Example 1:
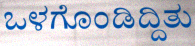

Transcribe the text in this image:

ಒಳಗೊಂಡಿದ್ದಿತು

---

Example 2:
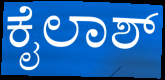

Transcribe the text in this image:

ಕೈಲಾಶ್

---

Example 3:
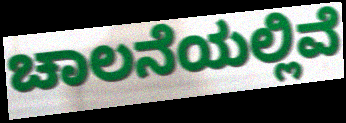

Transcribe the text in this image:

ಚಾಲನೆಯಲ್ಲಿವೆ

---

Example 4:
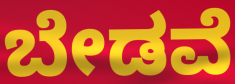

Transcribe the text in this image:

ಬೇಡವೆ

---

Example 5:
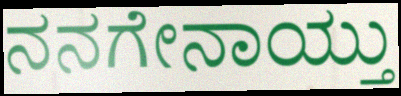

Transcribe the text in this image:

ನನಗೇನಾಯ್ತು